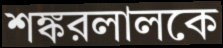
শঙ্করলালকে